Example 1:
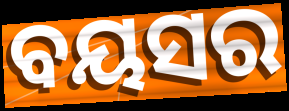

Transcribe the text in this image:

ବୟସର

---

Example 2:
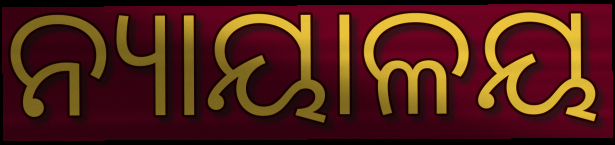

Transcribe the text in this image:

ନ୍ୟାୟାଳୟ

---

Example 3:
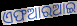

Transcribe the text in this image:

ଏଫଆରଆଇ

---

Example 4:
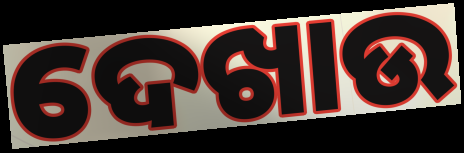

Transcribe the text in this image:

ଦେଖାଉ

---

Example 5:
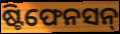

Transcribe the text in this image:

ଷ୍ଟିଫେନସନ୍